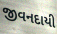
જીવનદાયી